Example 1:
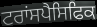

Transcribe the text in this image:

ਟਰਾਂਸਪੈਸਿਫਿਕ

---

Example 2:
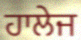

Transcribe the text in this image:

ਹਾਲੇਜ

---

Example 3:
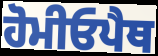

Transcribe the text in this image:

ਹੋਮੀਓਪੈਥ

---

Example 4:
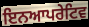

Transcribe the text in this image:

ਇਨਆਪਰੇਟਿਵ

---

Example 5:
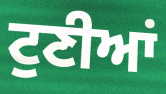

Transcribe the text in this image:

ਟੁਣੀਆਂ